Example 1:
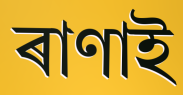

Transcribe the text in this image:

ৰাণাই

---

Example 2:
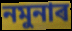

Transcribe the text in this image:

নমুনাৰ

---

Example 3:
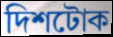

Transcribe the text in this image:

দিশটোক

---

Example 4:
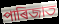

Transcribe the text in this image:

পাৰিজাত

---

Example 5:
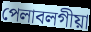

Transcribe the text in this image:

পেলাবলগীয়া